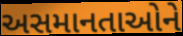
અસમાનતાઓને